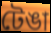
টেঙা